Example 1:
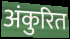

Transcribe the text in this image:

अंकुरित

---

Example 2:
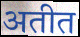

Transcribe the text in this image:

अतीत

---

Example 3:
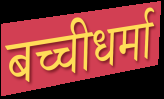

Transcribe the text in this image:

बच्चीधर्मा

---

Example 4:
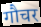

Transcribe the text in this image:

गौचर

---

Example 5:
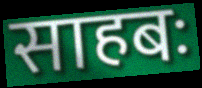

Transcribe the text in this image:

साहबः